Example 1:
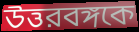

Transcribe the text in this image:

উত্তরবঙ্গকে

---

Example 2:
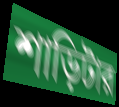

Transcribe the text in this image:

শাড়িটার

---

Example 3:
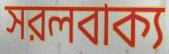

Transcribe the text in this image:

সরলবাক্য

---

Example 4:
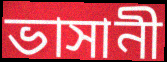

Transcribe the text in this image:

ভাসানী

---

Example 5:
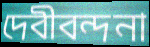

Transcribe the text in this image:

দেবীবন্দনা